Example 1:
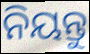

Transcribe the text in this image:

ନିୟନ୍ତୁ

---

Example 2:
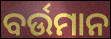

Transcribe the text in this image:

ବର୍ଉମାନ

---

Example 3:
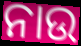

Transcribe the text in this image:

ନାଉ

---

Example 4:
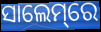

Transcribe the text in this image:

ସାଲେମ୍‌ରେ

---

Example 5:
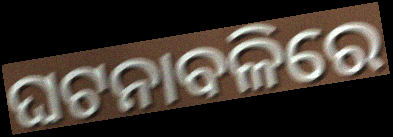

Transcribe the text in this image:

ଘଟନାବଳିରେ